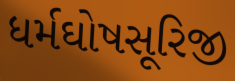
ધર્મઘોષસૂરિજી